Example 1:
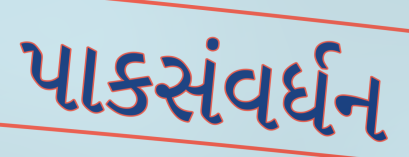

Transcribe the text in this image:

પાકસંવર્ધન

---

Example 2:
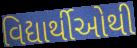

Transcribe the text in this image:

વિદ્યાર્થીઓથી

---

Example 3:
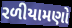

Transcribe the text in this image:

રળીયામણો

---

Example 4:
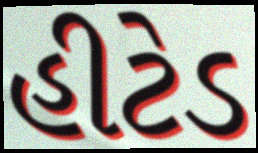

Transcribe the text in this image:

હીટેડ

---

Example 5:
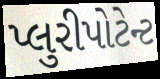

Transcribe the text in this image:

પ્લુરીપોટેન્ટ